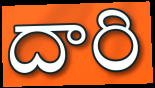
దారి